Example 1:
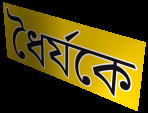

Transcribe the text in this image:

ধৈর্যকে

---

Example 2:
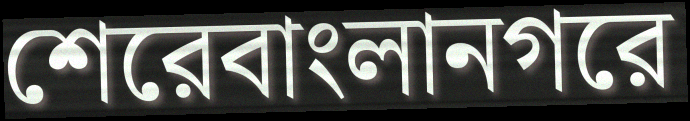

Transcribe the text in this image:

শেরেবাংলানগরে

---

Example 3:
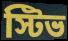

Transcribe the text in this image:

স্টিভ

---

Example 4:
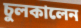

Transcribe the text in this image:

চুলকালেন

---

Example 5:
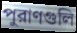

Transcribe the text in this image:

পুরাণগুলি